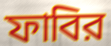
ফাবির